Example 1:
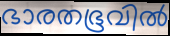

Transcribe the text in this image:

ഭാരതഭൂവിൽ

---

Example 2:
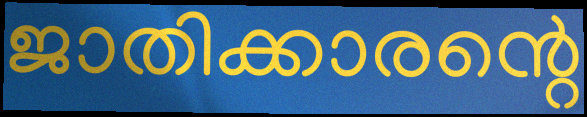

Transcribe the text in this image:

ജാതിക്കാരന്റെ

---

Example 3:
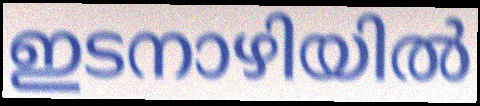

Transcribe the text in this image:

ഇടനാഴിയിൽ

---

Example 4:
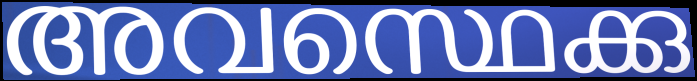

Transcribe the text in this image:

അവസ്ഥെക്കു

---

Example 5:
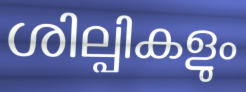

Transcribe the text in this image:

ശില്പികളും